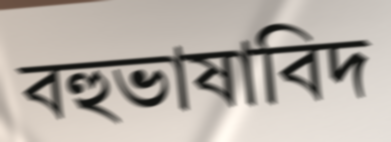
বহুভাষাবিদ